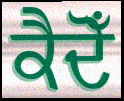
ਕੈਦੋਁ